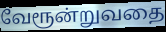
வேரூன்றுவதை